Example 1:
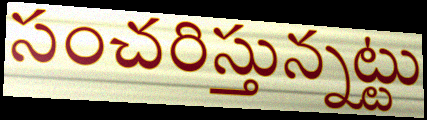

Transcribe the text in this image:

సంచరిస్తున్నట్టు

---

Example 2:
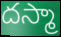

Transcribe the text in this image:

దస్మా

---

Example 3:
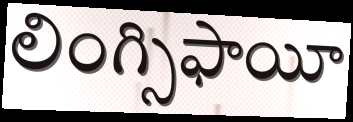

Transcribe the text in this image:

లింగ్సిఫాయీ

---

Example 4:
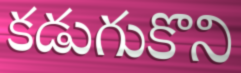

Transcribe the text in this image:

కడుగుకొని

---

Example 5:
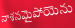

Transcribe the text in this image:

నాశనమైపోయెను